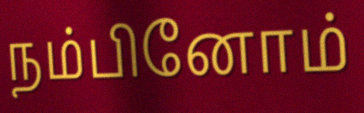
நம்பினோம்